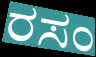
ರಸಂ